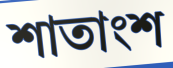
শাতাংশ